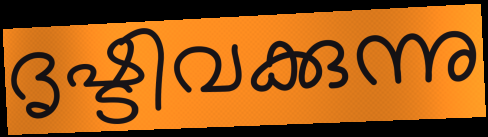
ദൃഷ്ടിവക്കുന്നു